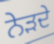
ਨੇੜਦੇ